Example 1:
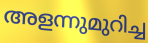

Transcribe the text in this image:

അളന്നുമുറിച്ച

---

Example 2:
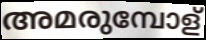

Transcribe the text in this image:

അമരുമ്പോള്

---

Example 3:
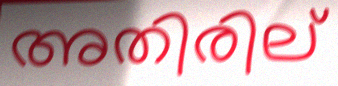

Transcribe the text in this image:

അതിരില്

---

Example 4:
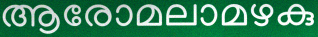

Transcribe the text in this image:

ആരോമലാമഴകു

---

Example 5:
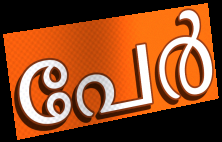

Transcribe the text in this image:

പേർ